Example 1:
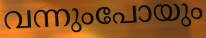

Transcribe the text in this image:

വന്നുംപോയും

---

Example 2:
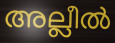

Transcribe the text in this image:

അല്ലീൽ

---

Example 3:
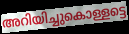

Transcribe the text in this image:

അറിയിച്ചുകൊള്ളട്ടെ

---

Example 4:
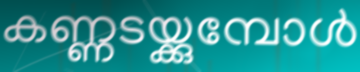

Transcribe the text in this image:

കണ്ണടയ്ക്കുമ്പോൾ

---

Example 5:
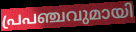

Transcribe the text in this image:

പ്രപഞ്ചവുമായി